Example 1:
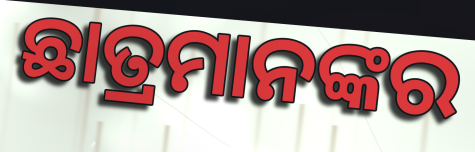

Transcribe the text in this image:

ଛାତ୍ରମାନଙ୍କର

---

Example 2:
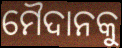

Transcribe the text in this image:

ମୈଦାନକୁ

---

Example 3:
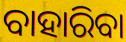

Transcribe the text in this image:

ବାହାରିବା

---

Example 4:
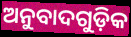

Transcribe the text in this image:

ଅନୁବାଦଗୁଡ଼ିକ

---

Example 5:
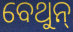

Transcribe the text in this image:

ବେଥୁନ୍